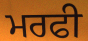
ਮਰਫੀ